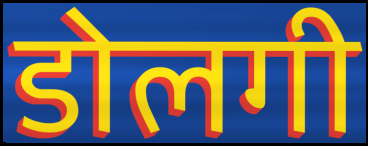
डोलगी